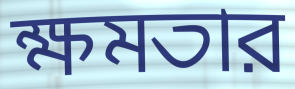
ক্ষমতার